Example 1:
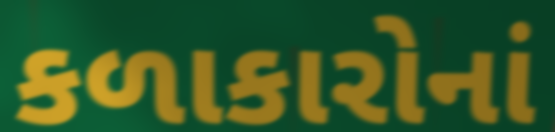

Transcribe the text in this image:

કળાકારોનાં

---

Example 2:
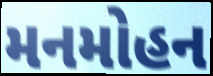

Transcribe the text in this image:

મનમોહન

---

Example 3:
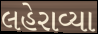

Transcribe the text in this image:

લહેરાવ્યા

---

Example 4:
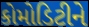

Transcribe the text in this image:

કોમોડિટીને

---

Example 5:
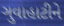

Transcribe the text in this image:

ગુવાહાટીને